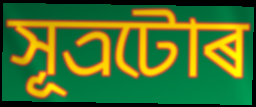
সূত্ৰটোৰ